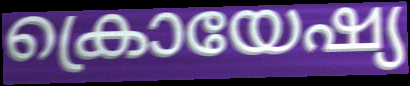
ക്രൊയേഷ്യ